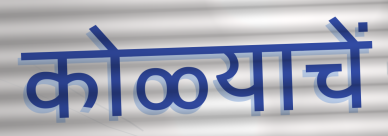
कोळ्याचें